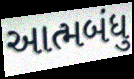
આત્મબંધુ